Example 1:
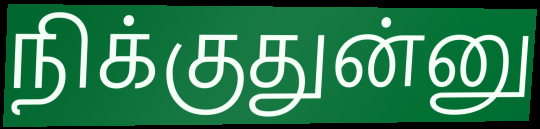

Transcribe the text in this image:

நிக்குதுன்னு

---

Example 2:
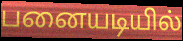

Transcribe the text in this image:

பனையடியில்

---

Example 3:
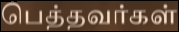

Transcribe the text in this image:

பெத்தவர்கள்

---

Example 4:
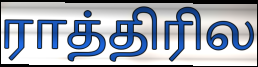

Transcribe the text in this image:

ராத்திரில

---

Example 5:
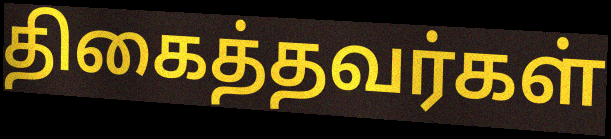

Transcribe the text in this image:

திகைத்தவர்கள்